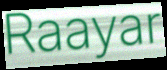
Raayar